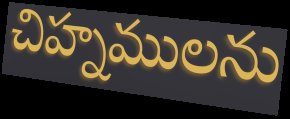
చిహ్నములను